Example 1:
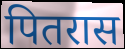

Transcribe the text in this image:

पितरास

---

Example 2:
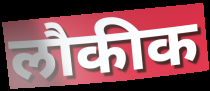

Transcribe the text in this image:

लौकीक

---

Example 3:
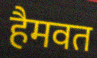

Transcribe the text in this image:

हैमवत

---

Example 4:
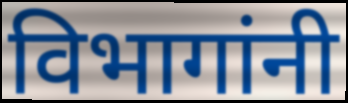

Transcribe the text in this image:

विभागांनी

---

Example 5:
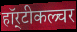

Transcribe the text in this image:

हॉर्टीकल्चर